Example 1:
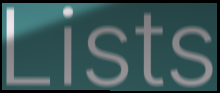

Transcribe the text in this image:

Lists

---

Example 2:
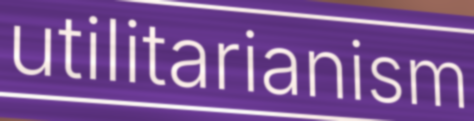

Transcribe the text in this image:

utilitarianism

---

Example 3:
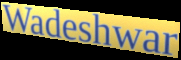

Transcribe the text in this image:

Wadeshwar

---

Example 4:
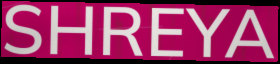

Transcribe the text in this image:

SHREYA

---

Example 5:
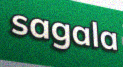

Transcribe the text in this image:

sagala